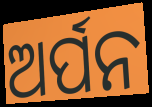
ଅର୍ପନ